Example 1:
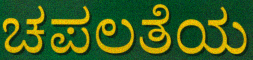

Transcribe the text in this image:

ಚಪಲತೆಯ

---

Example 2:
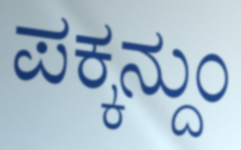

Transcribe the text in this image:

ಪಕ್ಕನ್ದುಂ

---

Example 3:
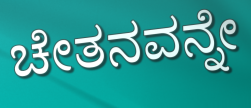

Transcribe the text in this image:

ಚೇತನವನ್ನೇ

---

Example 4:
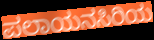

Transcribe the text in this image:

ಪಲಾಯನಸಿರಿಯ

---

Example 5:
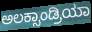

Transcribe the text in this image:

ಅಲಕ್ಸಾಂಡ್ರಿಯಾ